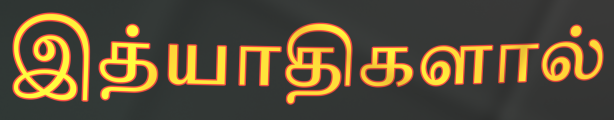
இத்யாதிகளால்